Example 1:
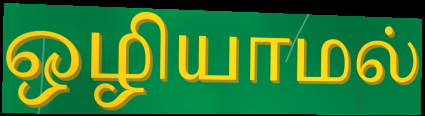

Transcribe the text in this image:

ஒழியாமல்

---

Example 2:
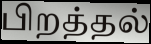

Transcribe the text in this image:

பிறத்தல்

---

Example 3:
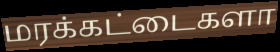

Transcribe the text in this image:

மரக்கட்டைகளா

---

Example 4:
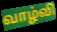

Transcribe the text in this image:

வாழ்வி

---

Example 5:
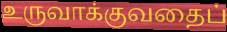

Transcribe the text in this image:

உருவாக்குவதைப்